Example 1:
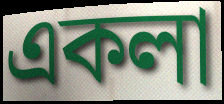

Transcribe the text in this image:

একলা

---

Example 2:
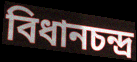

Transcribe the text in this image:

বিধানচন্দ্র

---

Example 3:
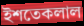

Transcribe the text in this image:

ইশতেকলাল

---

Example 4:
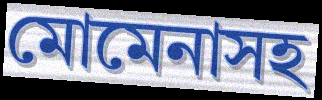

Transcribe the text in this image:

মোমেনাসহ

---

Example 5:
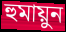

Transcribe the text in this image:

হুমায়ুন